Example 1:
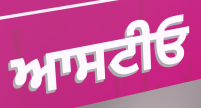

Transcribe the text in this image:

ਆਸਟੀਓ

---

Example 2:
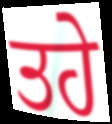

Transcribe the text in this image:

ਤਹੇ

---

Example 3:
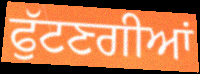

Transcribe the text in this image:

ਫੁੱਟਣਗੀਆਂ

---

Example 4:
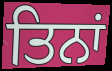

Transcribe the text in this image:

ਤਿਨਾਂ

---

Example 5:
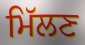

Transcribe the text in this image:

ਮਿੱਲਣ